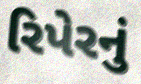
રિપેરનું